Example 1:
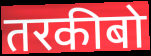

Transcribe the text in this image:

तरकीबो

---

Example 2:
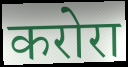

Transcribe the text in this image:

करोरा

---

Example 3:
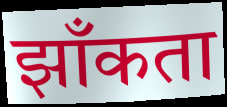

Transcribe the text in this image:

झाँकता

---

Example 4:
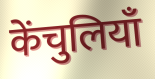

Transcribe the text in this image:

केंचुलियाँ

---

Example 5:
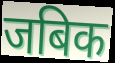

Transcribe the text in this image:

जबिक